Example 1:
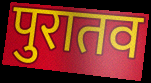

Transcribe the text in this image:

पुरातव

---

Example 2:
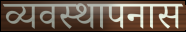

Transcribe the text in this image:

व्यवस्थापनास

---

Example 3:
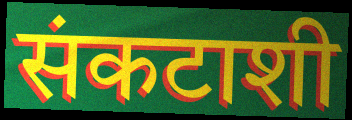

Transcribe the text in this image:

संकटाशी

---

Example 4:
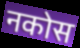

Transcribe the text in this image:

नकोस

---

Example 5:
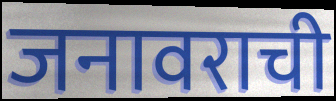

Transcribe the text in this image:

जनावराची